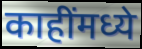
काहींमध्ये